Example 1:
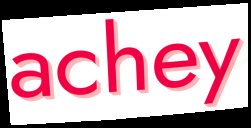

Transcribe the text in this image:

achey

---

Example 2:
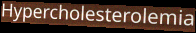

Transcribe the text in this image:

Hypercholesterolemia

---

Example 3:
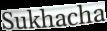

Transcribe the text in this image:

Sukhacha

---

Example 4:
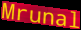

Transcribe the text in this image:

Mrunal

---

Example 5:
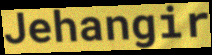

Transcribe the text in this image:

Jehangir